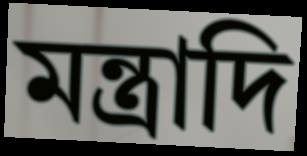
মন্ত্রাদি